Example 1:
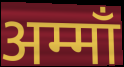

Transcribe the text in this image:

अम्माँ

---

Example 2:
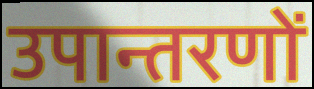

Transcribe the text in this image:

उपान्तरणों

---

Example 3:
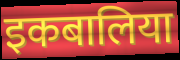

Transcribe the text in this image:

इकबालिया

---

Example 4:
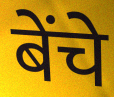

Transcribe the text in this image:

बेंचे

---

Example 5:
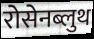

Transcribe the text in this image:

रोसेनब्लुथ